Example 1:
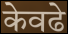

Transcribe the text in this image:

केवढे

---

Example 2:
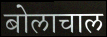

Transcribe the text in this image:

बोलाचाल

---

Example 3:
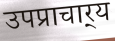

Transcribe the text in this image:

उपप्राचार्य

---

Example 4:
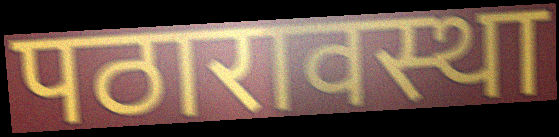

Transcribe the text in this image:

पठारावस्था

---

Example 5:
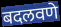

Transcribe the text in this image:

बदलवणे